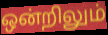
ஒன்றிலும்